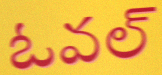
ఓవల్